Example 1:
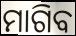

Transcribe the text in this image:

ମାଗିବ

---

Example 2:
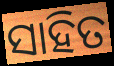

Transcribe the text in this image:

ସାହିତ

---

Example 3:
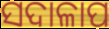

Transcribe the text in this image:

ସଦାଳାପ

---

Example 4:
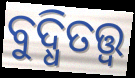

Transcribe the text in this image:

ବୁଦ୍ଧିତତ୍ତ୍ବ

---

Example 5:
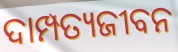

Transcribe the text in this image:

ଦାମ୍ପତ୍ୟଜୀବନ